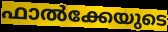
ഫാൽക്കേയുടെ